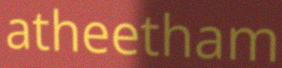
atheetham